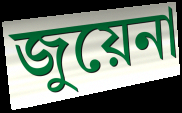
জুয়েনা